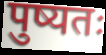
पुष्यतः